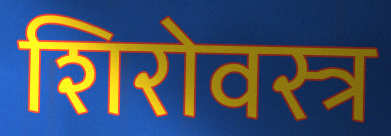
शिरोवस्त्र